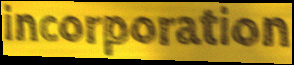
incorporation